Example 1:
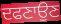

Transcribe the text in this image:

ਦਫਣਾਉਣ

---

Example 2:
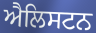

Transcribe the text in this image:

ਐਲਿਸਟਨ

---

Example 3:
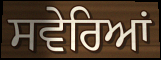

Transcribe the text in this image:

ਸਵੇਰਿਆਂ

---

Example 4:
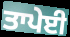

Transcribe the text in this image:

ਤਾਪੇਈ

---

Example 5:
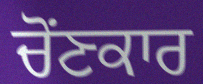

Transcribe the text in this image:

ਚੋਂਣਕਾਰ